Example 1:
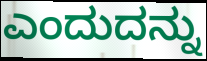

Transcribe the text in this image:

ಎಂದುದನ್ನು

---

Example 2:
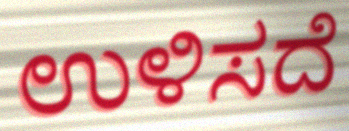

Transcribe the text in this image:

ಉಳಿಸದೆ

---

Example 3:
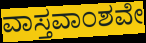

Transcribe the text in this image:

ವಾಸ್ತವಾಂಶವೇ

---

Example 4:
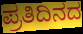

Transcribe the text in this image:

ಪ್ರತಿದಿನದ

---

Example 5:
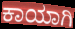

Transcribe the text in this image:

ಕಾಯಾಗಿ